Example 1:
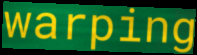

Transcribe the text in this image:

warping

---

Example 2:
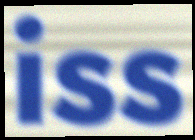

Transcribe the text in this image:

iss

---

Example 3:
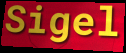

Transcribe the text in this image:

Sigel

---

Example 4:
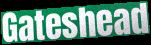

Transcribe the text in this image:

Gateshead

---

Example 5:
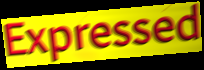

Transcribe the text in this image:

Expressed